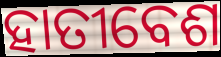
ହାତୀବେଶ